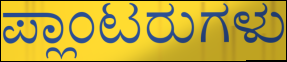
ಪ್ಲಾಂಟರುಗಳು